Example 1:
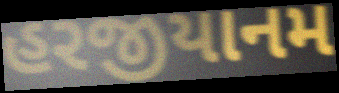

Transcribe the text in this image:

હરજીયાનમ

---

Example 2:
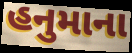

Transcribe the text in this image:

હનુમાના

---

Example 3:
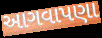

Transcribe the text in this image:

આગવાપણા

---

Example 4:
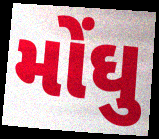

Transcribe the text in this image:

મોંઘુ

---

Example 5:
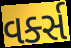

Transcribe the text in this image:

વર્ક્સ